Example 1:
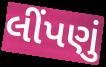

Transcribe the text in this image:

લીંપણું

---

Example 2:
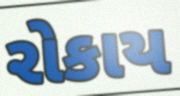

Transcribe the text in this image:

રોકાય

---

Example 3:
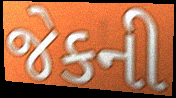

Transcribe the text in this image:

જેકની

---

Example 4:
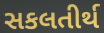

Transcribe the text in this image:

સકલતીર્થ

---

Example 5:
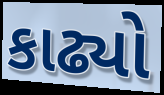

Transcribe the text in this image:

કાઢ્યો